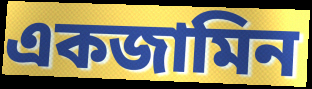
একজামিন